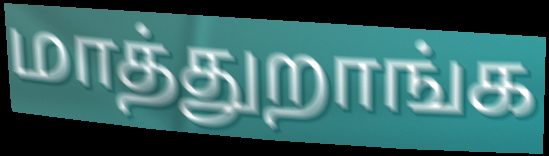
மாத்துறாங்க